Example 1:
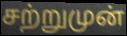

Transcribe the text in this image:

சற்றுமுன்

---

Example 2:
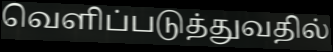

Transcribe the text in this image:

வெளிப்படுத்துவதில்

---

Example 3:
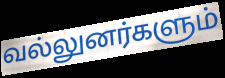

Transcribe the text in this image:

வல்லுனர்களும்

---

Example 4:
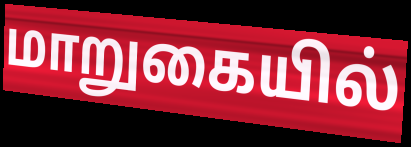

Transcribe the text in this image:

மாறுகையில்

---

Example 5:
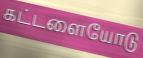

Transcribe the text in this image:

கட்டளையோடு